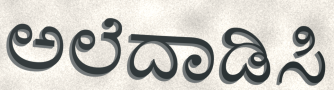
ಅಲೆದಾಡಿಸಿ